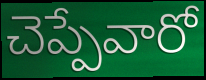
చెప్పేవారో